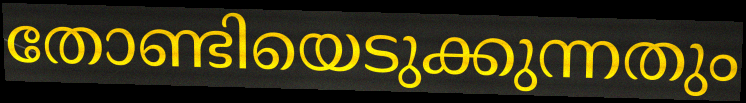
തോണ്ടിയെടുക്കുന്നതും